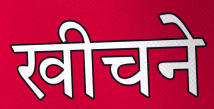
खीचने